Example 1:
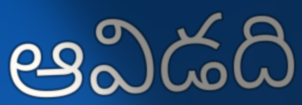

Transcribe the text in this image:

ఆవిడది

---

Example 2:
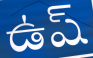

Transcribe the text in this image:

ఉష్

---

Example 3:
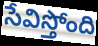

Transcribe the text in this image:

సేవిస్తోంది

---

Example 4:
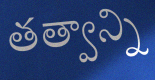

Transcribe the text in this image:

తత్వాన్ని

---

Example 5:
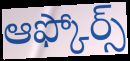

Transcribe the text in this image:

ఆఫ్కోర్స్